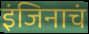
इंजिनाचं